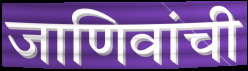
जाणिवांची